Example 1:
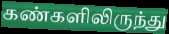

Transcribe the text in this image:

கண்களிலிருந்து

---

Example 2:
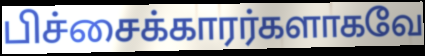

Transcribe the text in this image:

பிச்சைக்காரர்களாகவே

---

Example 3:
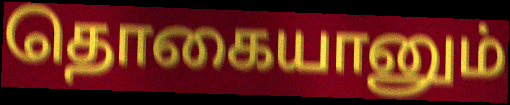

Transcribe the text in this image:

தொகையானும்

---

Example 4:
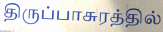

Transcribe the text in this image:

திருப்பாசுரத்தில்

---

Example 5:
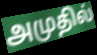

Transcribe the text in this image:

அமுதில்